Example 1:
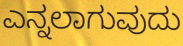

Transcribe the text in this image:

ಎನ್ನಲಾಗುವುದು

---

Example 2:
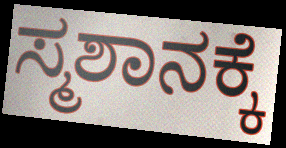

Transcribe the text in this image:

ಸ್ಮಶಾನಕ್ಕೆ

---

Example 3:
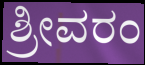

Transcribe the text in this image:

ಶ್ರೀವರಂ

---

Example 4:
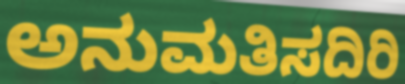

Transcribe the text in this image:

ಅನುಮತಿಸದಿರಿ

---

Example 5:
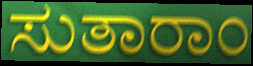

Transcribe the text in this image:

ಸುತಾರಾಂ